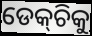
ଡେକ୍‌ଚିକୁ